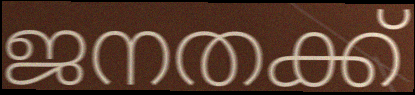
ജനതക്ക്